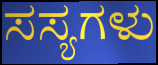
ಸಸ್ಯಗಳು